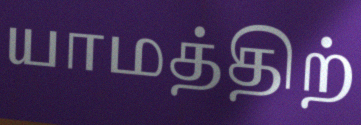
யாமத்திற்